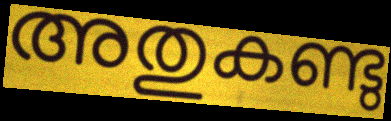
അതുകണ്ടു